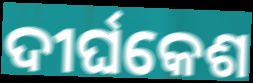
ଦୀର୍ଘକେଶ